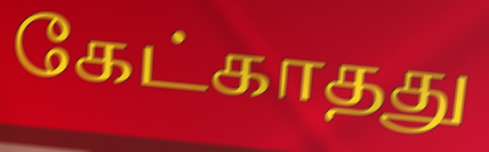
கேட்காதது